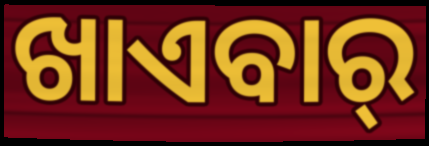
ଖାଏବାର୍